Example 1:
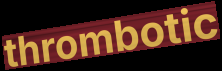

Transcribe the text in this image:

thrombotic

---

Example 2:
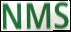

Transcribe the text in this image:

NMS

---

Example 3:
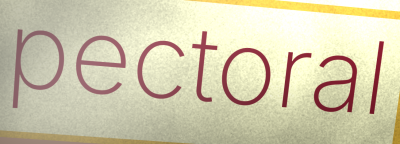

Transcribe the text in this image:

pectoral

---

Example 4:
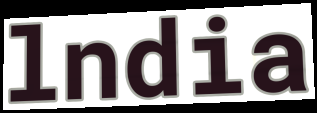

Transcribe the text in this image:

lndia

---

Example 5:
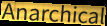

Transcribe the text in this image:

Anarchical